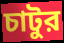
চাটুর